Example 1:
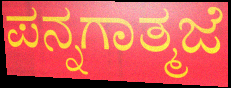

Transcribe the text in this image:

ಪನ್ನಗಾತ್ಮಜೆ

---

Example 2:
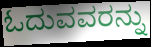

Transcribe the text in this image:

ಓದುವವರನ್ನು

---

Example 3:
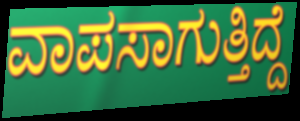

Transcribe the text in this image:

ವಾಪಸಾಗುತ್ತಿದ್ದೆ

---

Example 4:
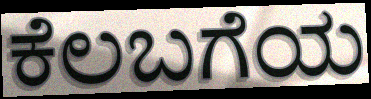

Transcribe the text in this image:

ಕೆಲಬಗೆಯ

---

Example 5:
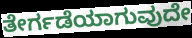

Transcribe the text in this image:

ತೇರ್ಗಡೆಯಾಗುವುದೇ